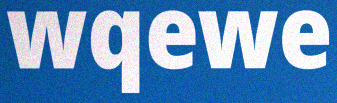
wqewe